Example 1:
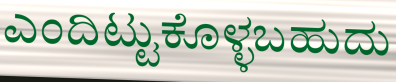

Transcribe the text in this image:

ಎಂದಿಟ್ಟುಕೊಳ್ಳಬಹುದು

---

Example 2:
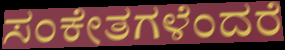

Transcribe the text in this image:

ಸಂಕೇತಗಳೆಂದರೆ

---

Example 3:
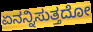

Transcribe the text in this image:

ಏನನ್ನಿಸುತ್ತದೋ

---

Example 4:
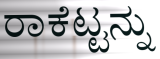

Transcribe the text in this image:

ರಾಕೆಟ್ಟನ್ನು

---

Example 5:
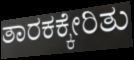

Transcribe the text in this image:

ತಾರಕಕ್ಕೇರಿತು